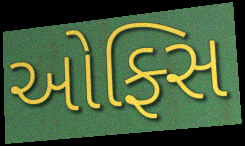
ઓફ્સિ